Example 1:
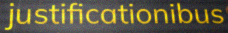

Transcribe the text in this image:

justificationibus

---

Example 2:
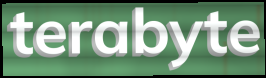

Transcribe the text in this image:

terabyte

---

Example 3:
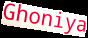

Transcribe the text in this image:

Ghoniya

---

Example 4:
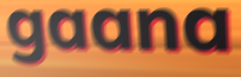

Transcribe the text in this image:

gaana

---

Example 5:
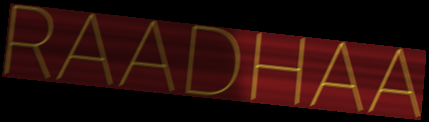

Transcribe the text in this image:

RAADHAA